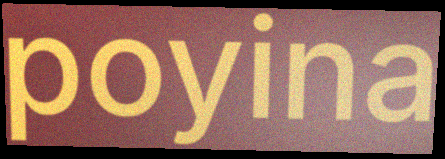
poyina